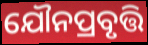
ଯୌନପ୍ରବୃତ୍ତି